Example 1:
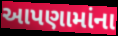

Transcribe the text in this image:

આપણામાંના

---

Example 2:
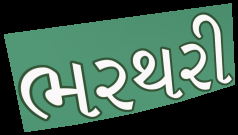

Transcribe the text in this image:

ભરથરી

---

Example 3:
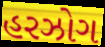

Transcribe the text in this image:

હરઝોગ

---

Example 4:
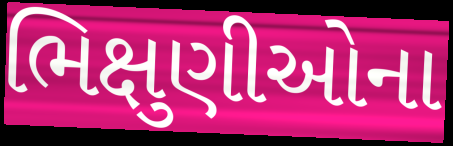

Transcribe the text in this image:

ભિક્ષુણીઓના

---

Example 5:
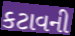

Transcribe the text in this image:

કટાવની